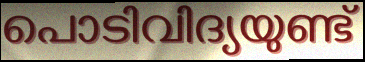
പൊടിവിദ്യയുണ്ട്